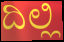
ದಿಲ್ಲಿ